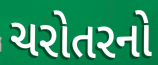
ચરોતરનો